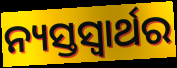
ନ୍ୟସ୍ତସ୍ଵାର୍ଥର